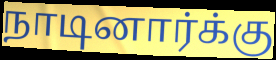
நாடினார்க்கு